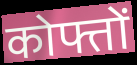
कोफ्तों